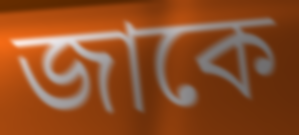
জাকে